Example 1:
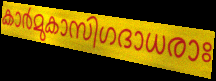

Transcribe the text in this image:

കാർമുകാസിഗദാധരാഃ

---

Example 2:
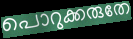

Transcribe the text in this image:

പൊറുക്കരുതേ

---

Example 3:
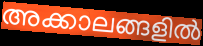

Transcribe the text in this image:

അക്കാലങ്ങളിൽ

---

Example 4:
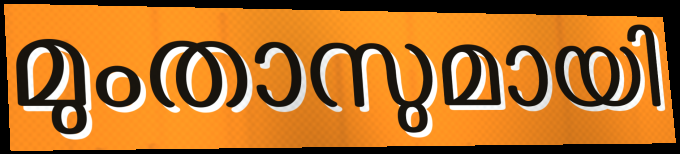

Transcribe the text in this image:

മുംതാസുമായി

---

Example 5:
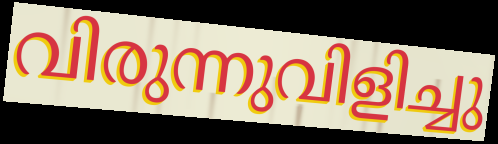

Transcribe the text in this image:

വിരുന്നുവിളിച്ചു